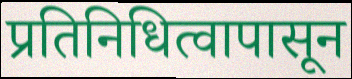
प्रतिनिधित्वापासून